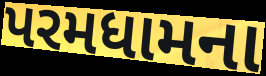
પરમધામના